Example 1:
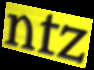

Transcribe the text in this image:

ntz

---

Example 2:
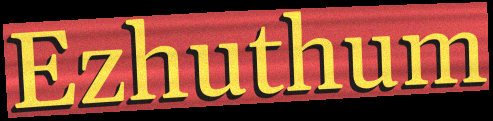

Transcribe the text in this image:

Ezhuthum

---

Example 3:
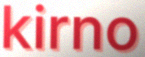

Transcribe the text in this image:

kirno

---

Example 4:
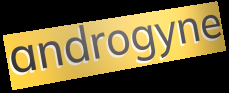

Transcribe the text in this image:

androgyne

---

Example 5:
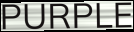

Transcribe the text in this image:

PURPLE